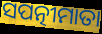
ସପତ୍ନୀମାତା